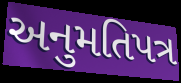
અનુમતિપત્ર